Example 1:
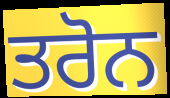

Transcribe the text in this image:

ਤਰੋਨ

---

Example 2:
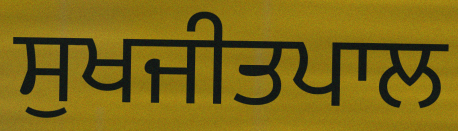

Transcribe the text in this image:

ਸੁਖਜੀਤਪਾਲ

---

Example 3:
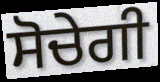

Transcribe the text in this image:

ਸੋਚੇਗੀ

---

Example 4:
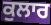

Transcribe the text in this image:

ਕੁਲਾਰ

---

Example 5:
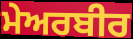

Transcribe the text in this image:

ਮੇਅਰਬੀਰ